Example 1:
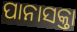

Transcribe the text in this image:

ପାନାସକ୍ତା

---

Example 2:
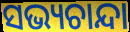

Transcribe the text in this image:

ସଭ୍ୟଚାନ୍ଦା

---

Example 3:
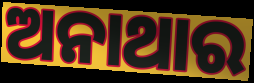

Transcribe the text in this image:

ଅନାଥାର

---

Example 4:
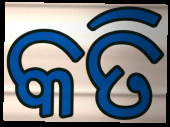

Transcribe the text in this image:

କତି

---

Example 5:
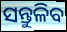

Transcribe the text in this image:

ସନ୍ତୁଳିବ